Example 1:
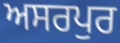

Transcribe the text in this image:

ਅਸਰਪੁਰ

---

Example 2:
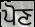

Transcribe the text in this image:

ਪੋਣ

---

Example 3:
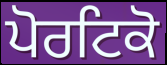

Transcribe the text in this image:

ਪੋਰਟਿਕੋ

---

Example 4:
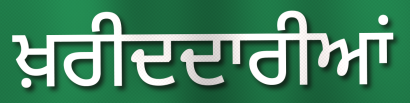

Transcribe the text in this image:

ਖ਼ਰੀਦਦਾਰੀਆਂ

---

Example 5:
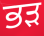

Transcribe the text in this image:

ਭੜ